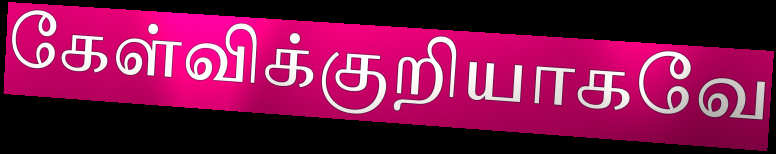
கேள்விக்குறியாகவே